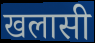
खलासी